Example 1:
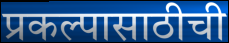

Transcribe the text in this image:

प्रकल्पासाठीची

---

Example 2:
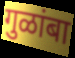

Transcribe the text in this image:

गुळांबा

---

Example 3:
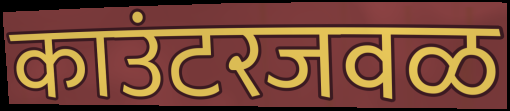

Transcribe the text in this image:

काउंटरजवळ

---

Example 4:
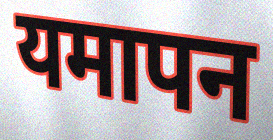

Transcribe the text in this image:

यमापन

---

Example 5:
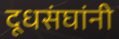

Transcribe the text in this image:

दूधसंघांनी